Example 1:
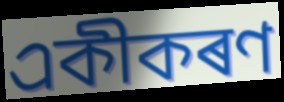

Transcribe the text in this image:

একীকৰণ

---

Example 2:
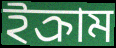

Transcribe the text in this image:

ইক্ৰাম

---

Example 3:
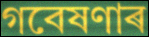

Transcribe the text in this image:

গবেষণাৰ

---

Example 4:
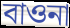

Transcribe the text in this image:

বাওনা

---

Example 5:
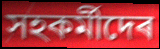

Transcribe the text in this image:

সহকৰ্মীদেৰ